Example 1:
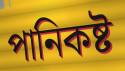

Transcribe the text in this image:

পানিকষ্ট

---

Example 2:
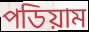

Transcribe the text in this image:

পডিয়াম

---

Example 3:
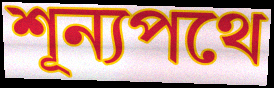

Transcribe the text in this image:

শূন্যপথে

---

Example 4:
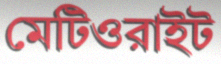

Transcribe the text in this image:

মেটিওরাইট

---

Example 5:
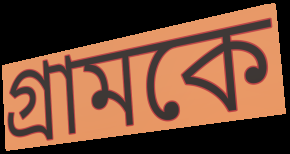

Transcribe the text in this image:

গ্রামকে